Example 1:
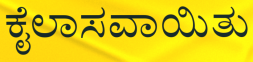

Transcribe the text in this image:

ಕೈಲಾಸವಾಯಿತು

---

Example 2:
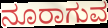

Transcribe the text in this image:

ನೂರಾಗುವ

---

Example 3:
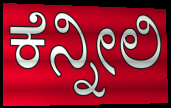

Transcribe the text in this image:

ಕೆನ್ನೀಲಿ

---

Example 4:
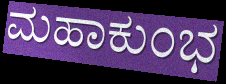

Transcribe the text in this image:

ಮಹಾಕುಂಭ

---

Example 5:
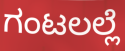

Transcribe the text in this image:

ಗಂಟಲಲ್ಲೆ